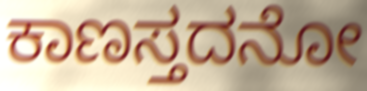
ಕಾಣಸ್ತದನೋ